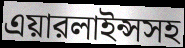
এয়ারলাইন্সসহ